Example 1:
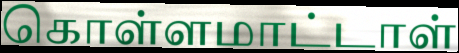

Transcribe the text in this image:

கொள்ளமாட்டாள்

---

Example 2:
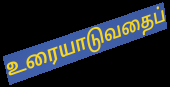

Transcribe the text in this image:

உரையாடுவதைப்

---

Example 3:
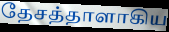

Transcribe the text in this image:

தேசத்தாளாகிய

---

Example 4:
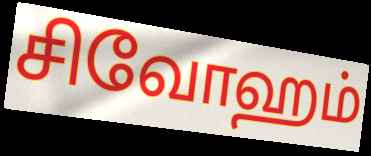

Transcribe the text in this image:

சிவோஹம்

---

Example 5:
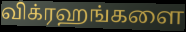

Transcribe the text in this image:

விக்ரஹங்களை